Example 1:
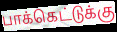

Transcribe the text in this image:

பாக்கெட்டுக்கு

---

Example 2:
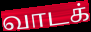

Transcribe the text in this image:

வாடக்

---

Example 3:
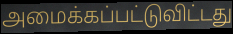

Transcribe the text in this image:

அமைக்கப்பட்டுவிட்டது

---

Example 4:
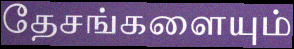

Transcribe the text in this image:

தேசங்களையும்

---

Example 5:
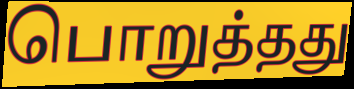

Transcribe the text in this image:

பொறுத்தது